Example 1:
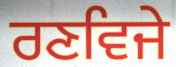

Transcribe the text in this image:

ਰਣਵਿਜੇ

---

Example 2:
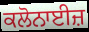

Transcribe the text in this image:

ਕਲੋਨਾਈਜ਼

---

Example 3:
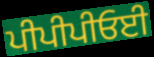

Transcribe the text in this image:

ਪੀਪੀਪੀਓਈ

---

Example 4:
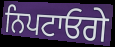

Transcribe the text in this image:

ਨਿਪਟਾਓਗੇ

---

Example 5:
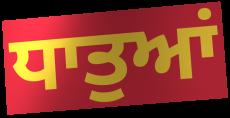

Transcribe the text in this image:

ਧਾਤੁਆਂ